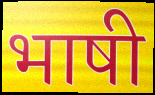
भाषी